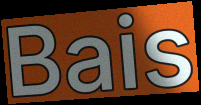
Bais